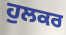
ਹੁਲਕਰ